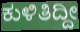
ಕುಳಿತಿದ್ದೀ